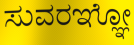
ಸುವರಞ್ಞೋ